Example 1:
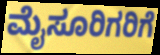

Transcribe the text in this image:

ಮೈಸೂರಿಗರಿಗೆ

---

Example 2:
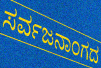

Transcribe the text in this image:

ಸರ್ವಜನಾಂಗದ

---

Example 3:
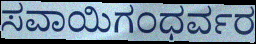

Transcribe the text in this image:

ಸವಾಯಿಗಂಧರ್ವರ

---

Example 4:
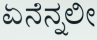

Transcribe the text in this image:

ಏನೆನ್ನಲೀ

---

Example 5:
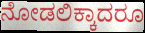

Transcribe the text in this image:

ನೋಡಲಿಕ್ಕಾದರೂ